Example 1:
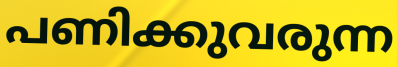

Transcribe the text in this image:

പണിക്കുവരുന്ന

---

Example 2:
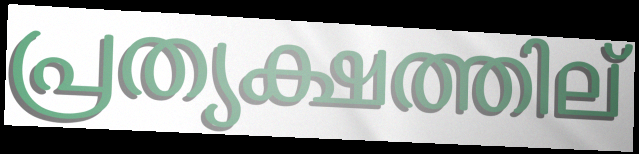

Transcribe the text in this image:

പ്രത്യക്ഷത്തില്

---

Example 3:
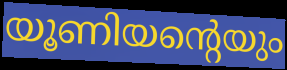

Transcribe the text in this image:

യൂണിയന്റെയും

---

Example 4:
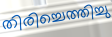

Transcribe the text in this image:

തിരിച്ചെത്തിച്ചു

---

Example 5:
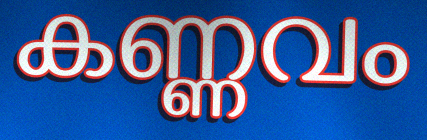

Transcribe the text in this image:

കണ്ണവം